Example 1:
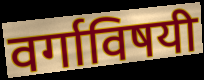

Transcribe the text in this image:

वर्गाविषयी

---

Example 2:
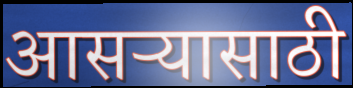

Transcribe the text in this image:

आसऱ्यासाठी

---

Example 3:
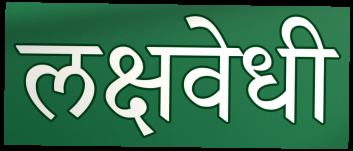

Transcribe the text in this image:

लक्षवेधी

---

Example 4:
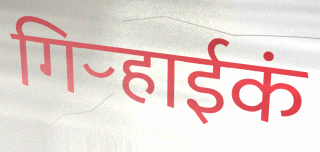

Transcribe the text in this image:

गिऱ्हाईकं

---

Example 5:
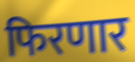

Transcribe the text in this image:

फिरणार